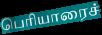
பெரியாரைச்